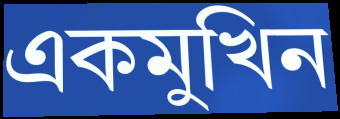
একমুখিন